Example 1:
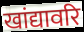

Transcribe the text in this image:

खांद्यावरि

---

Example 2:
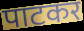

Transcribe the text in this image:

पाटकर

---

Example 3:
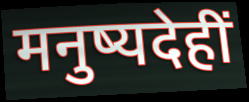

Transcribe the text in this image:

मनुष्यदेहीं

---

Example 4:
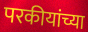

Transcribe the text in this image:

परकीयांच्या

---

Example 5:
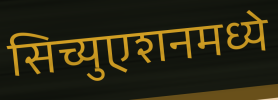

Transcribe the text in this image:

सिच्युएशनमध्ये